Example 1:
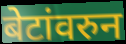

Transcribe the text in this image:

बेटांवरुन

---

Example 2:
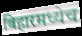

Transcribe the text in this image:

बिहारमध्येच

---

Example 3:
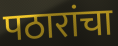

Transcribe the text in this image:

पठारांचा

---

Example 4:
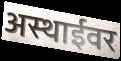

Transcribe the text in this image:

अस्थाईवर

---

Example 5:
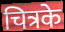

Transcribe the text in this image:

चित्रके